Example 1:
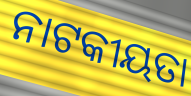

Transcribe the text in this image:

ନାଟକୀୟତା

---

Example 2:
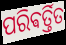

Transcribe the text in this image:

ପରିଵର୍ତ୍ତିତ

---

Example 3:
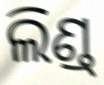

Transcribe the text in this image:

ଲିଣ୍ଡ୍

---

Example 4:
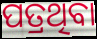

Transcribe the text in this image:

ପତ୍ରଥିବା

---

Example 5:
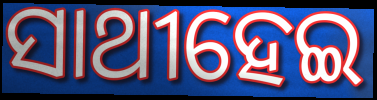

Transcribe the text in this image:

ସାଥୀହେଇ